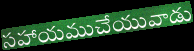
సహాయముచేయువాడు